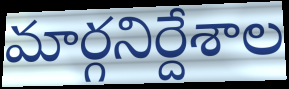
మార్గనిర్దేశాల